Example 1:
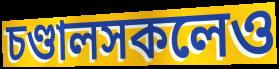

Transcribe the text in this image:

চণ্ডালসকলেও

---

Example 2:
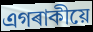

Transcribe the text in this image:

এগৰাকীয়ে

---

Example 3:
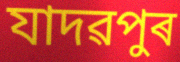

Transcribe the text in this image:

যাদৱপুৰ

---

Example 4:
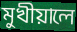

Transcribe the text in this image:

মুখীয়ালে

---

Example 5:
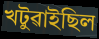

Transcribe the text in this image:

খটুৱাইছিল